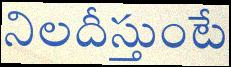
నిలదీస్తుంటే